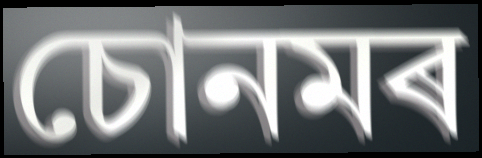
চোনমৰ